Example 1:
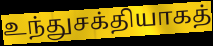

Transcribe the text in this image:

உந்துசக்தியாகத்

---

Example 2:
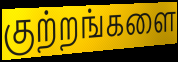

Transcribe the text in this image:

குற்றங்களை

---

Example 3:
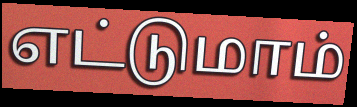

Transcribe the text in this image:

எட்டுமாம்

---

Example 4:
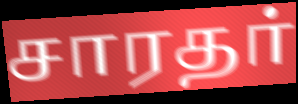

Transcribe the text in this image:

சாரதர்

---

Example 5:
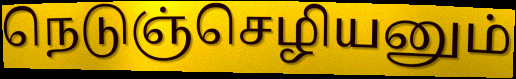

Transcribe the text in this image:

நெடுஞ்செழியனும்